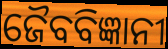
ଜୈବବିଜ୍ଞାନୀ